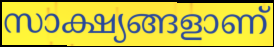
സാക്ഷ്യങ്ങളാണ്